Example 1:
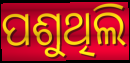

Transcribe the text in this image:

ପଶୁଥିଲି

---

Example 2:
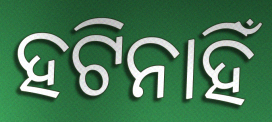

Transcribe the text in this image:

ହଟିନାହିଁ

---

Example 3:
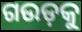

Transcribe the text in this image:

ଗଉଡ଼କୁ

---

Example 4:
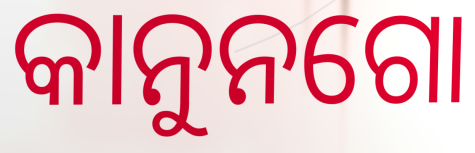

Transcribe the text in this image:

କାନୁନଗୋ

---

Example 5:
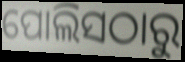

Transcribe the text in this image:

ପୋଲିସଠାରୁ